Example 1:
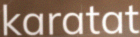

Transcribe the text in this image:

karatat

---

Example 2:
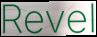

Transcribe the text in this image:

Revel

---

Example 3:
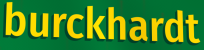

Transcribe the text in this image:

burckhardt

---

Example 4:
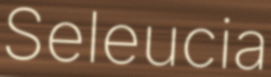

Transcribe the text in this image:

Seleucia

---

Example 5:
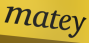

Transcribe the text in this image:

matey